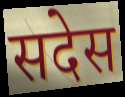
सदेस